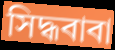
সিদ্ধবাবা